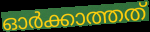
ഓർക്കാത്തത്